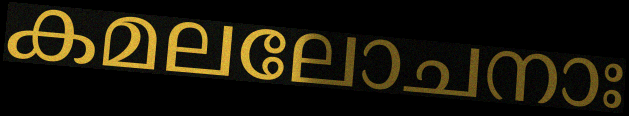
കമലലോചനാഃ